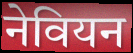
नेवियन